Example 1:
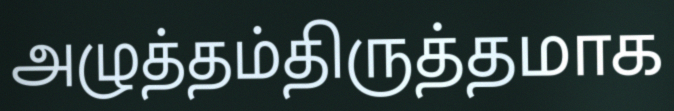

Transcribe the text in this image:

அழுத்தம்திருத்தமாக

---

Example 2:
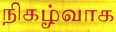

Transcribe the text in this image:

நிகழ்வாக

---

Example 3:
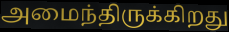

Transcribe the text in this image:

அமைந்திருக்கிறது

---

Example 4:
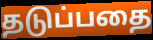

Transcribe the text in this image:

தடுப்பதை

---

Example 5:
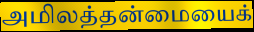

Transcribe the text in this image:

அமிலத்தன்மையைக்